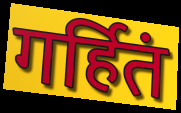
गर्हितं